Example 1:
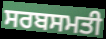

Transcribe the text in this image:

ਸਰਬਸਮਤੀ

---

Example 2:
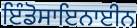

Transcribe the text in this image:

ਇੰਡੋਸਾਇਨਾਈਨ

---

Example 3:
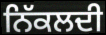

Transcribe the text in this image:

ਨਿੱਕਲਦੀ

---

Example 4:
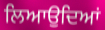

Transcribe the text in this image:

ਲਿਆਉਦਿਆਂ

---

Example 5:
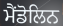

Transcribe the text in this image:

ਮੈਂਡੋਲਿਨ